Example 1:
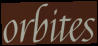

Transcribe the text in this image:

orbites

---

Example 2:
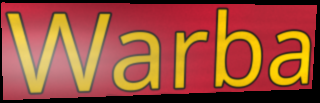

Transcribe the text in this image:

Warba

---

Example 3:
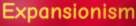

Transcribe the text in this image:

Expansionism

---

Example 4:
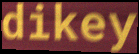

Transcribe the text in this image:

dikey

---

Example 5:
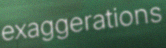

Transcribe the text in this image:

exaggerations